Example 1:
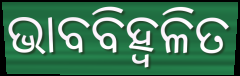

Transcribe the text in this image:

ଭାବବିହ୍ବଳିତ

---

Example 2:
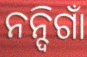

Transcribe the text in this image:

ନନ୍ଦିଗାଁ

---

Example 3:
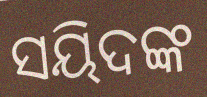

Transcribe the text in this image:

ସୟିଦଙ୍କ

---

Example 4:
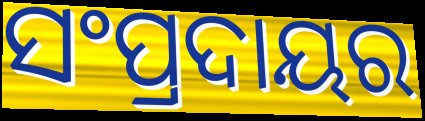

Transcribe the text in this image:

ସଂପ୍ରଦାୟର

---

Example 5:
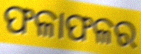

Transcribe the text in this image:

ଫଳାଫଳର